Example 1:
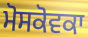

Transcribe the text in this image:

ਮੋਸਕੋਵਕਾ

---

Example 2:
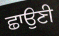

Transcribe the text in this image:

ਛਾਉਣੀ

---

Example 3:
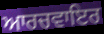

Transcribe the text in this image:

ਆਰਚਵਾਇਰ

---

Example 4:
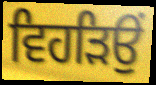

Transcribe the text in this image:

ਵਿਹੜਿਉਂ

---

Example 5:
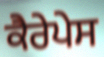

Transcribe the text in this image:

ਕੈਰੇਪੇਸ